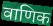
वाणिक